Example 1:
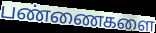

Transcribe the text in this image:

பண்ணைகளை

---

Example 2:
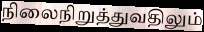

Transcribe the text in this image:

நிலைநிறுத்துவதிலும்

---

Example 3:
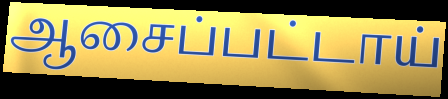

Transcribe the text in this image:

ஆசைப்பட்டாய்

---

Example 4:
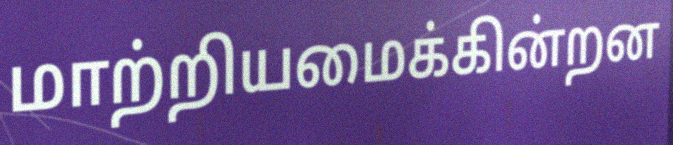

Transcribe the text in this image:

மாற்றியமைக்கின்றன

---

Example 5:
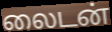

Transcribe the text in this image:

லைடன்